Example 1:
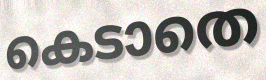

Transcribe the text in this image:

കെടാതെ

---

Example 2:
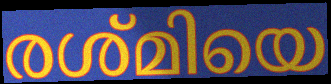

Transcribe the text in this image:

രശ്മിയെ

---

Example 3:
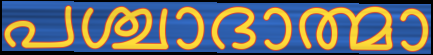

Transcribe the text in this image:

പശ്ചാദാത്മാ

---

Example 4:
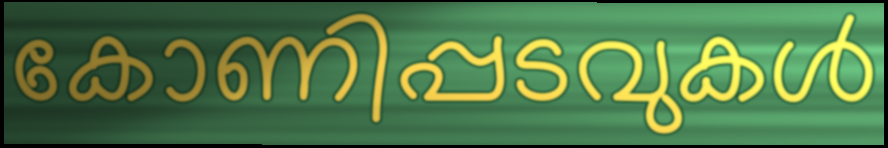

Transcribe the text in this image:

കോണിപ്പടവുകൾ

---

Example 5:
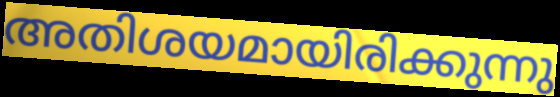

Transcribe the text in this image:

അതിശയമായിരിക്കുന്നു